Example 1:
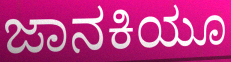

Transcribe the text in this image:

ಜಾನಕಿಯೂ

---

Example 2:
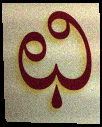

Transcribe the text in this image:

ಛಿ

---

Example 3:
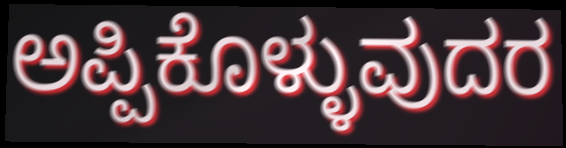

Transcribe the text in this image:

ಅಪ್ಪಿಕೊಳ್ಳುವುದರ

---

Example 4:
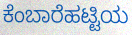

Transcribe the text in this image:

ಕೆಂಬಾರೆಹಟ್ಟಿಯ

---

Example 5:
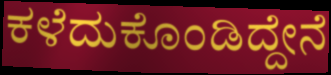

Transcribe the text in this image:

ಕಳೆದುಕೊಂಡಿದ್ದೇನೆ